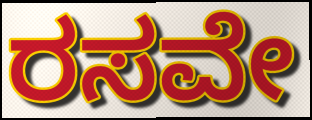
ರಸವೇ